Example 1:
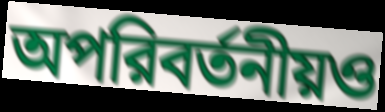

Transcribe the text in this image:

অপরিবর্তনীয়ও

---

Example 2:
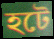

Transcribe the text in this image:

হটে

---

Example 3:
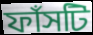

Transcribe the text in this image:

ফাঁসটি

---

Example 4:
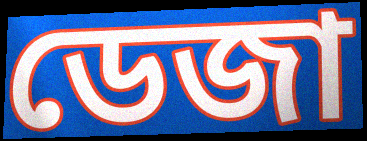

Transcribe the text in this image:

ডেজা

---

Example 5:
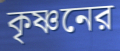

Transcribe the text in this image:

কৃষ্ণনের